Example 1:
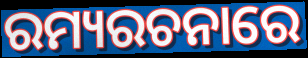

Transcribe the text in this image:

ରମ୍ୟରଚନାରେ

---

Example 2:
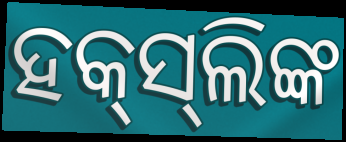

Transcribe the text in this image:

ହକ୍‌ସ୍‌ଲିଙ୍କ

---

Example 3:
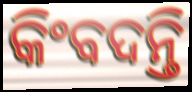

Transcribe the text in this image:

କିଂବଦନ୍ତି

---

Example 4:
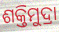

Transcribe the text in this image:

ଶକ୍ତିମୁଦ୍ରା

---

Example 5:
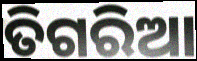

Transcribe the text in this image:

ତିଗରିଆ